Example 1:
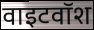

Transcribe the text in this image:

वाइटवॉश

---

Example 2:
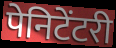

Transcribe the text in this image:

पेनिटेंटरी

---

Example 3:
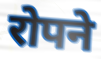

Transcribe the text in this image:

रोपने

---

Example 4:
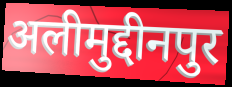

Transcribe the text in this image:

अलीमुद्दीनपुर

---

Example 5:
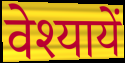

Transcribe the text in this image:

वेश्यायें